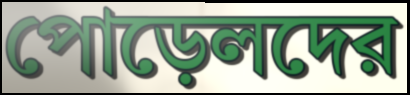
পোড়েলদের